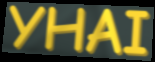
YHAI